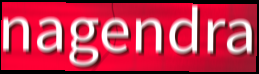
nagendra